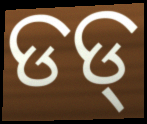
ଡଡ୍